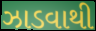
ઝાડવાથી